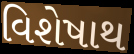
વિશેષાથ